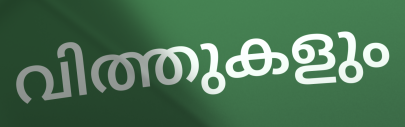
വിത്തുകളും